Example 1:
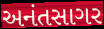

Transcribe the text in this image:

અનંતસાગર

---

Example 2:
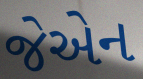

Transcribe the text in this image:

જેએન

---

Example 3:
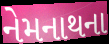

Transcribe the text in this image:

નેમનાથના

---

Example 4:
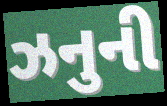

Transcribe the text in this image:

ઝનુની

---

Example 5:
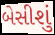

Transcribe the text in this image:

બેસીશું